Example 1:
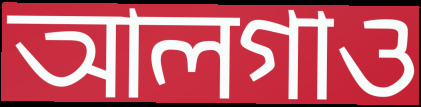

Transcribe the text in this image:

আলগাও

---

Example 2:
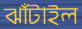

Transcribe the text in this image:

ঝাঁটাইল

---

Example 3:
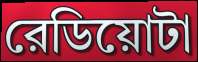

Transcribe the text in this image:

রেডিয়োটা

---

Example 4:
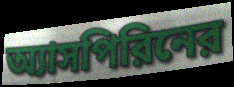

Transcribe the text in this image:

অ্যাসপিরিনের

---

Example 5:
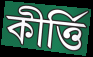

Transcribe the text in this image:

কীর্ত্তি